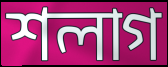
শলাগ